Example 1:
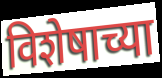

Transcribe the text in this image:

विशेषाच्या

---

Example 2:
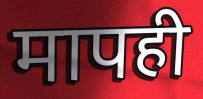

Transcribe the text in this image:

मापही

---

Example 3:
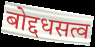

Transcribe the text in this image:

बोद्दधसत्व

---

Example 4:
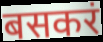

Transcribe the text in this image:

बसकरं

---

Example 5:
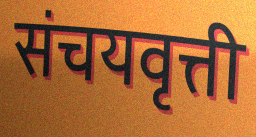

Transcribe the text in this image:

संचयवृत्ती